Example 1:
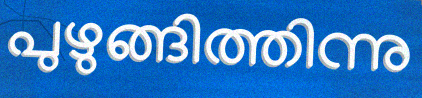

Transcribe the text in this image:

പുഴുങ്ങിത്തിന്നു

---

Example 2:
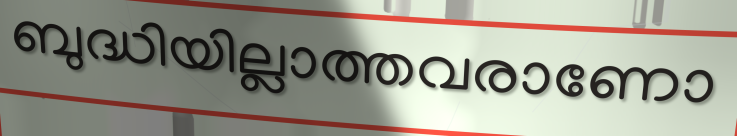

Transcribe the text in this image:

ബുദ്ധിയില്ലാത്തവരാണോ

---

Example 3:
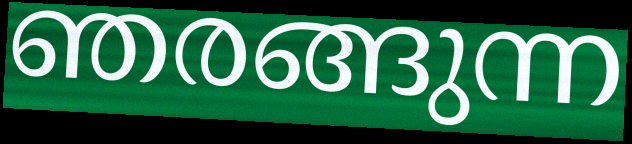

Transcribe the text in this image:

ഞരങ്ങുന്ന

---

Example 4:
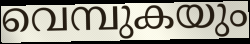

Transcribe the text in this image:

വെമ്പുകയും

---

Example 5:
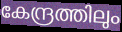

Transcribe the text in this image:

കേന്ദ്രത്തിലും